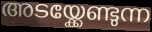
അടയ്ക്കേണ്ടുന്ന